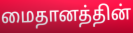
மைதானத்தின்